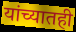
यांच्यातही